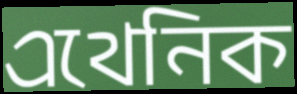
এথেনিক